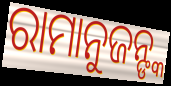
ରାମାନୁଜନ୍ଙ୍କ